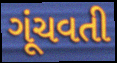
ગૂંચવતી